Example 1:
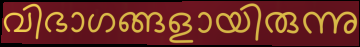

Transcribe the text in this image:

വിഭാഗങ്ങളായിരുന്നു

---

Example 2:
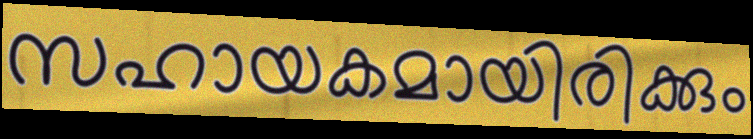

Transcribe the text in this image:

സഹായകമായിരിക്കും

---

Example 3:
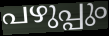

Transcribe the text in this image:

പഴുപ്പും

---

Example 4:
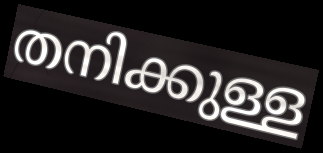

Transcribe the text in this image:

തനിക്കുള്ള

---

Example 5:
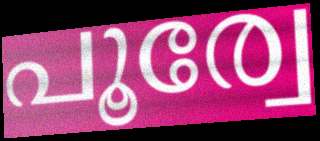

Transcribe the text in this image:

പൂര്വേ